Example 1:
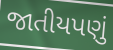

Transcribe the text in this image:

જાતીયપણું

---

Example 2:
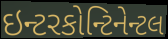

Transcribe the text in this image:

ઇન્ટરકોન્ટિનેન્ટલ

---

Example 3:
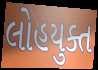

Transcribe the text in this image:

લોહયુક્ત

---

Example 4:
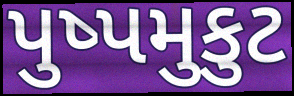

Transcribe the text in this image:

પુષ્પમુકુટ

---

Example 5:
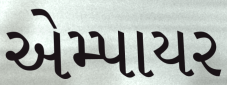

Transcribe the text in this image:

એમ્પાયર